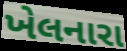
ખેલનારા